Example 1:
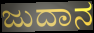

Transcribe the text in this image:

ಜುದಾನ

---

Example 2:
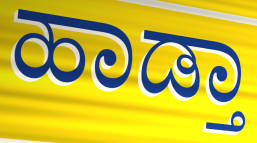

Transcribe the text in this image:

ಹಾಡ್ತಾ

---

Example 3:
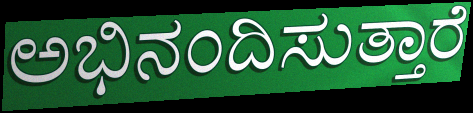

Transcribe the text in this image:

ಅಭಿನಂದಿಸುತ್ತಾರೆ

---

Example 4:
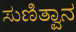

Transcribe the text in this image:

ಸುಣಿತ್ವಾನ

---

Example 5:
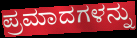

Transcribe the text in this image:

ಪ್ರಮಾದಗಳನ್ನು